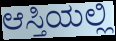
ಆಸ್ತಿಯಲ್ಲಿ